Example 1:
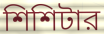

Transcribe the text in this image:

শিশিটার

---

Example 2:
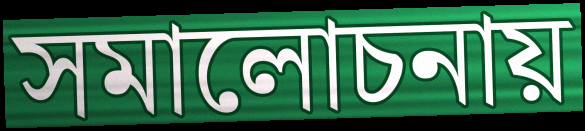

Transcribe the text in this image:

সমালোচনায়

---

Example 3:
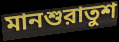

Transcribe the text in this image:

মানশুরাতুশ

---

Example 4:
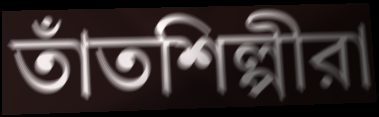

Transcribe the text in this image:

তাঁতশিল্পীরা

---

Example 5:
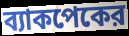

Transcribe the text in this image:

ব্যাকপেকের